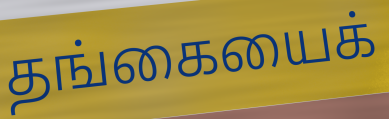
தங்கையைக்